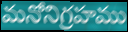
మనోనిగ్రహము